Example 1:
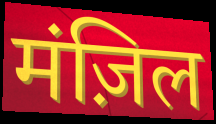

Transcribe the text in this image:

मंज़िल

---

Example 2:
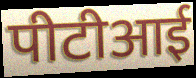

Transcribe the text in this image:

पीटीआई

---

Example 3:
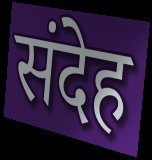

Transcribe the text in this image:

संदेह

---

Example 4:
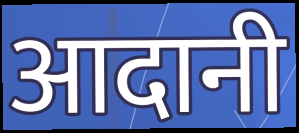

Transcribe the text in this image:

आदानी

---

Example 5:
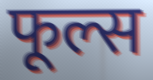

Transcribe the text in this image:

फूल्स